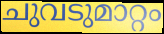
ചുവടുമാറ്റം